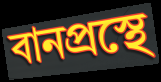
বানপ্রস্থে